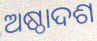
ଅଷ୍ଠାଦଶ